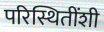
परिस्थितींशी